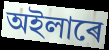
অইলাৰে